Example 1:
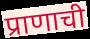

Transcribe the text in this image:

प्राणाची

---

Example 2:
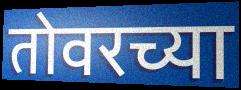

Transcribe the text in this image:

तोवरच्या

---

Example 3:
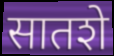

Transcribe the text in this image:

सातशे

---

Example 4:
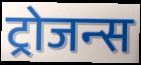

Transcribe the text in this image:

ट्रोजन्स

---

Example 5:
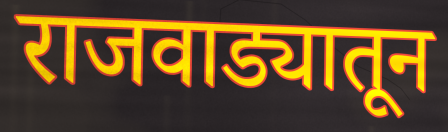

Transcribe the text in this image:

राजवाड्यातून